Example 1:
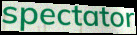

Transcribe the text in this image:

spectator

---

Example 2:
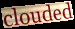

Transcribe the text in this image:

clouded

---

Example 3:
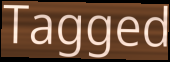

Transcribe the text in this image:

Tagged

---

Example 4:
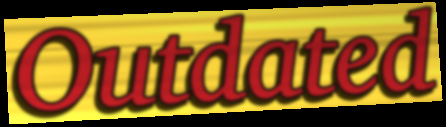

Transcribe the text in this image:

Outdated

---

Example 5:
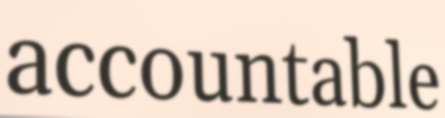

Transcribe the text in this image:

accountable